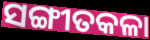
ସଙ୍ଗୀତକଳା